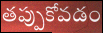
తప్పుకోవడం